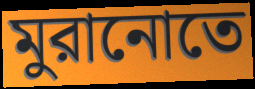
মুরানোতে